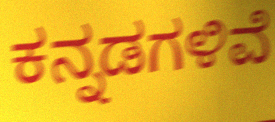
ಕನ್ನಡಗಳಿವೆ